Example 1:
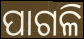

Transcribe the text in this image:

ପାଗଳି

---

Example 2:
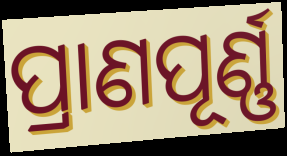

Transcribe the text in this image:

ପ୍ରାଣପୂର୍ଣ୍ଣ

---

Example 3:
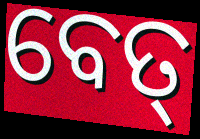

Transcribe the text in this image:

ବେତ୍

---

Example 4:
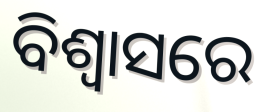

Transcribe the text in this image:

ବିଶ୍ବାସରେ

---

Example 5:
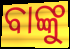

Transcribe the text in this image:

ବାଙ୍କୁ